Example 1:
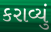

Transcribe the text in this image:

કરાવ્યું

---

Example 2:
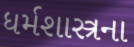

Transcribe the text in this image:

ધર્મશાસ્ત્રના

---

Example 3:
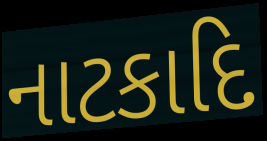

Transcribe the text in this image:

નાટકાદિ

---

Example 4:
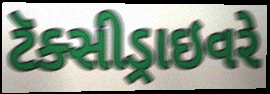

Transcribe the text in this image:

ટૅક્સીડ્રાઇવરે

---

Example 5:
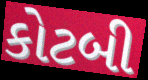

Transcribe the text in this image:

કોટબી